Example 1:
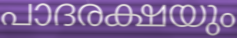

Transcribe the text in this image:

പാദരക്ഷയും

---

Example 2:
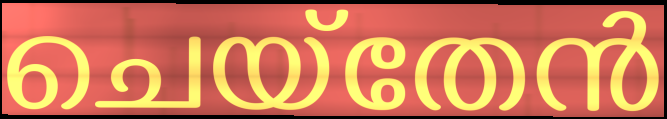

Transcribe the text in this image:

ചെയ്‌തേൻ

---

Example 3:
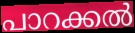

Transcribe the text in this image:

പാറക്കൽ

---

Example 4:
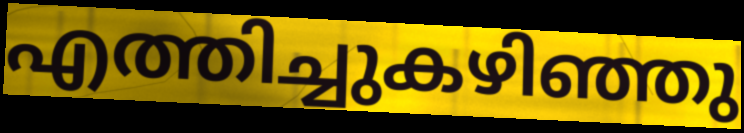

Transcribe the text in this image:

എത്തിച്ചുകഴിഞ്ഞു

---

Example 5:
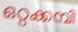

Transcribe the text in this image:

ഒറ്റക്കമ്പി